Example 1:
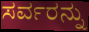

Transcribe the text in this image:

ಸರ್ವರನ್ನು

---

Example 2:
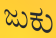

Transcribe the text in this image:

ಜುಕು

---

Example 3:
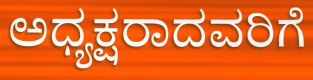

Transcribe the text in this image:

ಅಧ್ಯಕ್ಷರಾದವರಿಗೆ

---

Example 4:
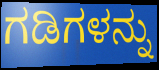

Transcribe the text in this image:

ಗಡಿಗಳನ್ನು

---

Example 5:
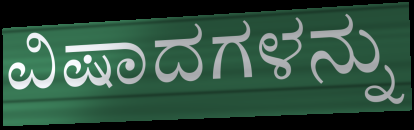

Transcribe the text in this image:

ವಿಷಾದಗಳನ್ನು